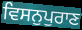
ਵਿਸਨੁਪੁਰਾਣ